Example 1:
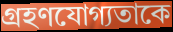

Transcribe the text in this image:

গ্রহণযোগ্যতাকে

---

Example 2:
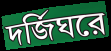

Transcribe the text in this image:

দর্জিঘরে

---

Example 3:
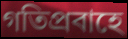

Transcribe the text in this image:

গতিপ্রবাহে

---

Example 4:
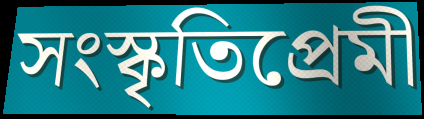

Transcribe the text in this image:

সংস্কৃতিপ্রেমী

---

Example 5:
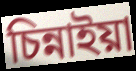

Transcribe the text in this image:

চিন্নাইয়া